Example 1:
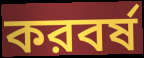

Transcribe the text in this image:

করবর্ষ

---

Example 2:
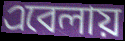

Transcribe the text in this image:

এবেলায়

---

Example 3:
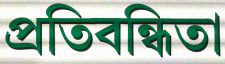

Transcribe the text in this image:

প্রতিবন্ধিতা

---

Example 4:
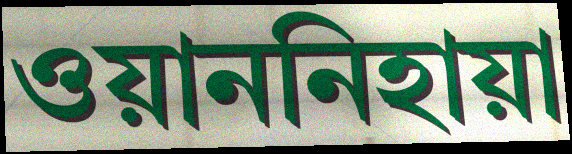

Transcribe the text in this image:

ওয়াননিহায়া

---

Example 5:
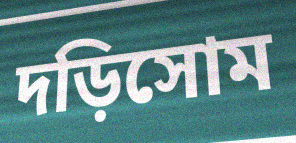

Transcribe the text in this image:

দড়িসোম